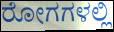
ರೋಗಗಳಲ್ಲಿ